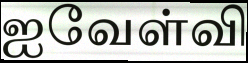
ஐவேள்வி